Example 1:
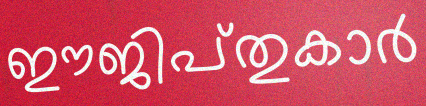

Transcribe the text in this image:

ഈജിപ്‌തുകാർ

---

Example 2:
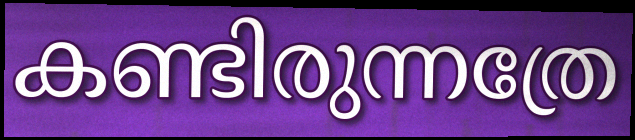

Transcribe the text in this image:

കണ്ടിരുന്നത്രേ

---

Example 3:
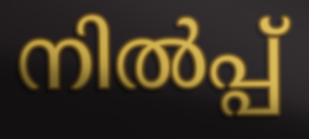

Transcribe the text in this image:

നിൽപ്പ്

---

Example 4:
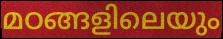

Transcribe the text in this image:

മഠങ്ങളിലെയും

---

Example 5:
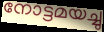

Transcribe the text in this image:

നോട്ടമയച്ചു